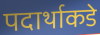
पदार्थाकडे